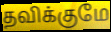
தவிக்குமே